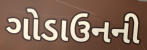
ગોડાઉનની